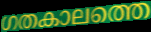
ഗതകാലത്തെ